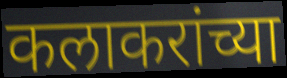
कलाकरांच्या